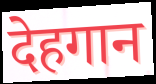
देहगान